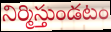
నిర్మిస్తుండటం